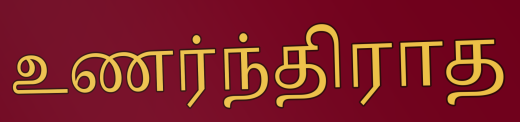
உணர்ந்திராத